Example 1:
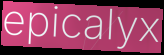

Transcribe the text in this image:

epicalyx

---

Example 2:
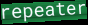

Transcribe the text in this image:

repeater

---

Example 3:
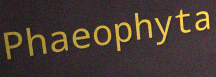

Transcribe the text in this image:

Phaeophyta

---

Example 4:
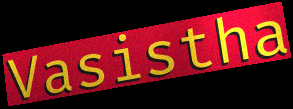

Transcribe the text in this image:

Vasistha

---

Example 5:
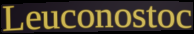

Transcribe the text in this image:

Leuconostoc